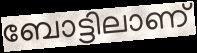
ബോട്ടിലാണ്